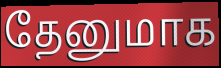
தேனுமாக